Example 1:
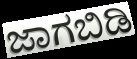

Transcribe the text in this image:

ಜಾಗಬಿಡಿ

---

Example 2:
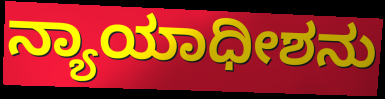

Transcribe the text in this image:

ನ್ಯಾಯಾಧೀಶನು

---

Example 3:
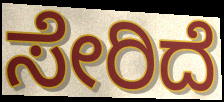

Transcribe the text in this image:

ಸೇರಿದೆ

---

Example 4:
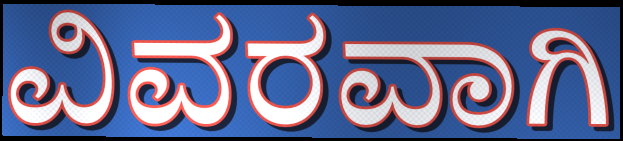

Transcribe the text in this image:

ವಿವರವಾಗಿ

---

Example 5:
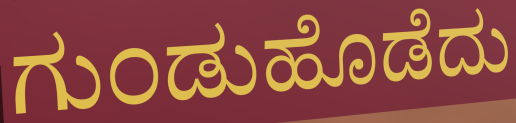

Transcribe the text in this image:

ಗುಂಡುಹೊಡೆದು